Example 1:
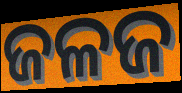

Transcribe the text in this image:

ଜଳଜ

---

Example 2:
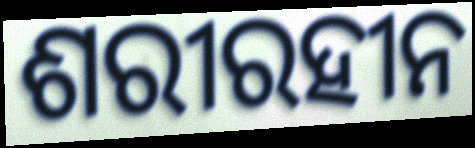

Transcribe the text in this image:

ଶରୀରହୀନ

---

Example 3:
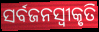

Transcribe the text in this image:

ସର୍ବଜନସ୍ୱୀକୃତି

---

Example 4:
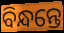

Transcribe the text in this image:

ବିନ୍ଧନ୍ତେ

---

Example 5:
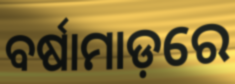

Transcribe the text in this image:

ବର୍ଷାମାଡ଼ରେ